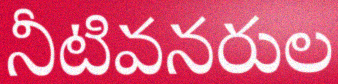
నీటివనరుల